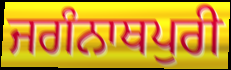
ਜਗੰਨਾਥਪੁਰੀ